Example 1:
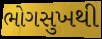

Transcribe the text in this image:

ભોગસુખથી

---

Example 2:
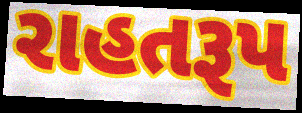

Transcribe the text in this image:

રાહતરૂપ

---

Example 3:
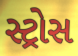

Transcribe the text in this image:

સ્ટ્રોસ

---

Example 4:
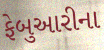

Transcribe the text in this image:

ફેબુઆરીના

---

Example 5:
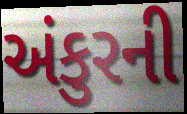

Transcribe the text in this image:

અંકુરની